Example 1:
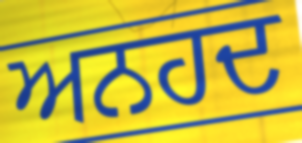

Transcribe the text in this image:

ਅਨਹਦ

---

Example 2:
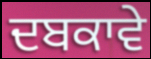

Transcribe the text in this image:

ਦਬਕਾਵੇ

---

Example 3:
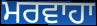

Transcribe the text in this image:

ਮਰਵਾਹਾ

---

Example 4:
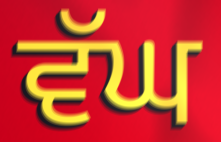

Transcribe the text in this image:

ਵੱਘ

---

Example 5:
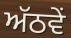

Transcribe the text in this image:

ਅੱਠਵੇਂ